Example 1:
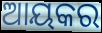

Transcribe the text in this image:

ଆୟକର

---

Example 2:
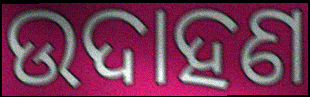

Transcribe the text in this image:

ଉଦାହଣ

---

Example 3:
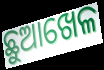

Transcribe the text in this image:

ଛୁଆଖେଳ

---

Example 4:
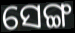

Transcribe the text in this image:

ସେଙ୍ଗ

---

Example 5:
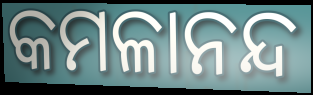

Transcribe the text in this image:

କମଳାନନ୍ଦ